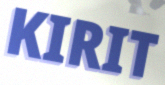
KIRIT